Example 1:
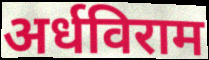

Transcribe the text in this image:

अर्धविराम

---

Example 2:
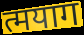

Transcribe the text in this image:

त्मयाग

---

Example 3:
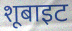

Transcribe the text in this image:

शूबाइट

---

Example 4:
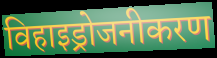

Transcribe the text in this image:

विहाइड्रोजनीकरण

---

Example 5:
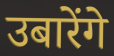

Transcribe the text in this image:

उबारेंगे